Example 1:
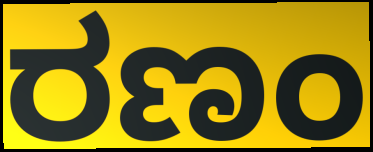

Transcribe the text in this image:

ರಣಂ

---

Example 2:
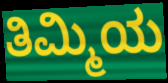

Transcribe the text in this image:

ತಿಮ್ಮಿಯ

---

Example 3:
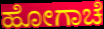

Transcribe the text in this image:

ಹೋಗಾಚೆ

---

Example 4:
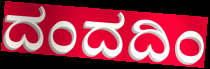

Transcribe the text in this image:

ದಂದದಿಂ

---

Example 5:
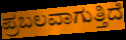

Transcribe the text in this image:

ಪ್ರಬಲವಾಗುತ್ತಿದೆ